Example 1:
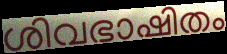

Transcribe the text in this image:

ശിവഭാഷിതം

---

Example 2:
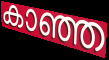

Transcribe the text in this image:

കാഞ്ഞ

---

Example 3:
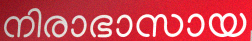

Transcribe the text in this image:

നിരാഭാസായ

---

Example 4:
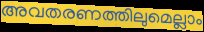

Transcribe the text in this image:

അവതരണത്തിലുമെല്ലാം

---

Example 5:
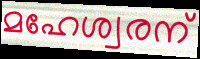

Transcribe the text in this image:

മഹേശ്വരന്